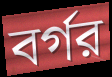
বর্গর